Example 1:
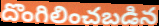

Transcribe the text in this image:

దొంగిలించబడిన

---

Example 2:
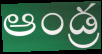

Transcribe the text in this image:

ఆండ్ర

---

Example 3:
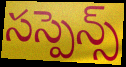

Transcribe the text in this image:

సస్పెన్స్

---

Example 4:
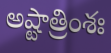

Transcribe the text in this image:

అష్టాత్రింశః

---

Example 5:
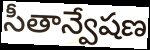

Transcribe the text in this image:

సీతాన్వేషణ